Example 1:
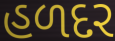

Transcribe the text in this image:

હળદર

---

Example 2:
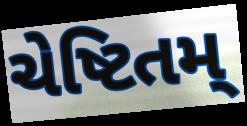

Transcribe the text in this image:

ચેષ્ટિતમ્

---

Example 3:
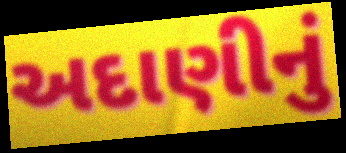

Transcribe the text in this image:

અદાણીનું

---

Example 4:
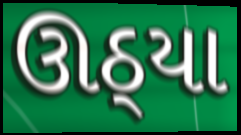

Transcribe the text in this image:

ઊઠ્યા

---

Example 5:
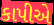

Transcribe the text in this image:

કાપીએ